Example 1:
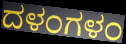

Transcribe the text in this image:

ದಳಂಗಳಂ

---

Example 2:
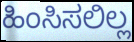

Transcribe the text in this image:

ಹಿಂಸಿಸಲಿಲ್ಲ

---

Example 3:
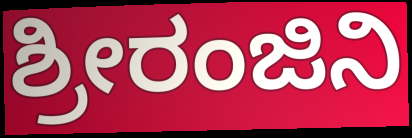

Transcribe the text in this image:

ಶ್ರೀರಂಜಿನಿ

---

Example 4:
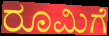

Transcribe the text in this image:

ರೂಮಿಗೆ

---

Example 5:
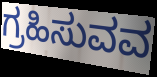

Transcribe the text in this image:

ಗ್ರಹಿಸುವವ